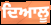
ਦਿਆਲੂ